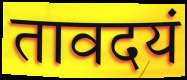
तावदयं